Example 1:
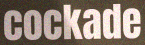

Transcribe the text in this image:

cockade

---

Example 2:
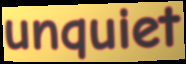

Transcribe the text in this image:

unquiet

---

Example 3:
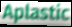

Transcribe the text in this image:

Aplastic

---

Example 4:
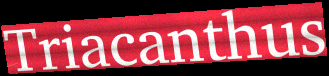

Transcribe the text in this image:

Triacanthus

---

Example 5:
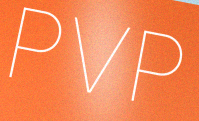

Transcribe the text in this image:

PVP